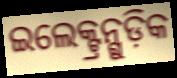
ଇଲେକ୍ଟ୍ରନ୍ଗୁଡ଼ିକ